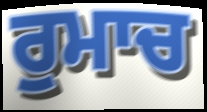
ਰੁਮਾਚ